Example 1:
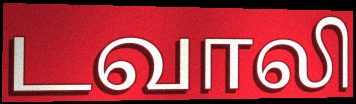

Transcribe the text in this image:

டவாலி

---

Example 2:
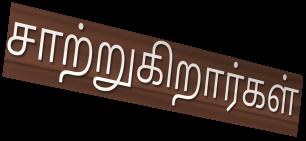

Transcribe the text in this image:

சாற்றுகிறார்கள்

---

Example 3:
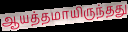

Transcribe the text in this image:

ஆயத்தமாயிருந்தது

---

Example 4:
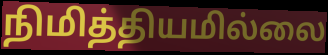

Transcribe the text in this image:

நிமித்தியமில்லை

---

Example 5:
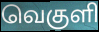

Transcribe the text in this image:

வெகுளி